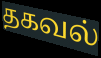
தகவல்